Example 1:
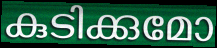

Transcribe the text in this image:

കുടിക്കുമോ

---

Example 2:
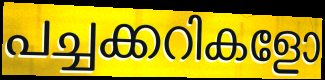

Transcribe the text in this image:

പച്ചക്കറികളോ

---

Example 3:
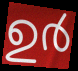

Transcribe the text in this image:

ഉർ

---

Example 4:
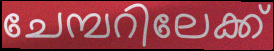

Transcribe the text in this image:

ചേമ്പറിലേക്ക്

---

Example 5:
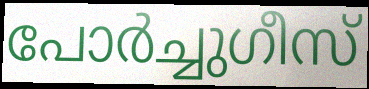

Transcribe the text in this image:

പോർച്ചുഗീസ്